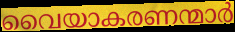
വൈയാകരണന്മാർ